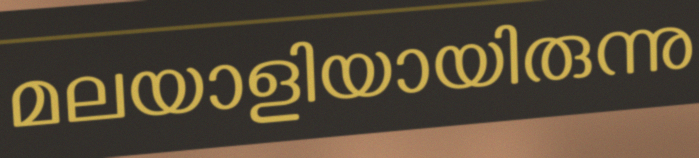
മലയാളിയായിരുന്നു